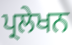
ਪ੍ਰਲੇਖਨ